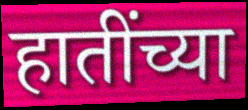
हातींच्या